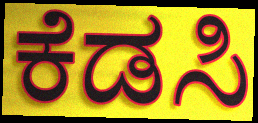
ಕೆಡಸಿ